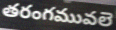
తరంగమువలె